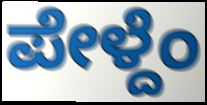
ಪೇಳ್ದೆಂ